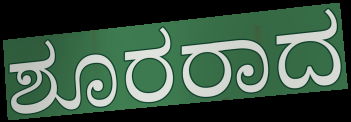
ಶೂರರಾದ